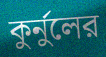
কুর্নুলের